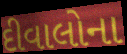
દીવાલોના